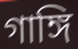
গাঙ্গি